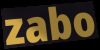
zabo